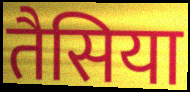
तैसिया